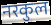
नरकुल